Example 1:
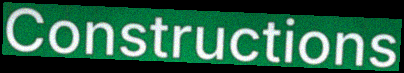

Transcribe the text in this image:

Constructions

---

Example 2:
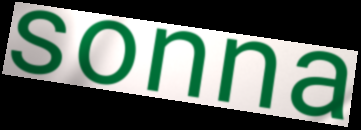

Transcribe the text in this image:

sonna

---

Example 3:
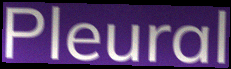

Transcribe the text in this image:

Pleural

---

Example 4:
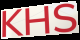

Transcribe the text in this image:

KHS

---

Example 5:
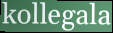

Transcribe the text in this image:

kollegala